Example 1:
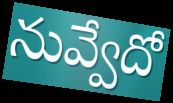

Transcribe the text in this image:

నువ్వేదో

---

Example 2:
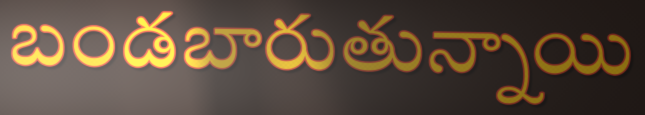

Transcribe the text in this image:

బండబారుతున్నాయి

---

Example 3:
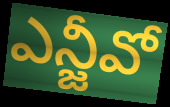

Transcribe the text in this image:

ఎన్జీవో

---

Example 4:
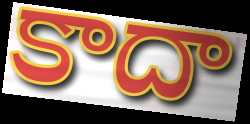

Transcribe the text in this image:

కాదా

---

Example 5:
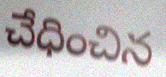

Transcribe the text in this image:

చేధించిన